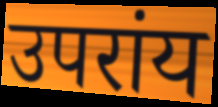
उपरांय